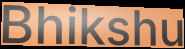
Bhikshu